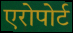
एरोपोर्ट